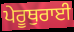
ਪੇਰੂਥੁਰਾਈ